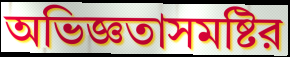
অভিজ্ঞতাসমষ্টির